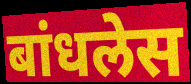
बांधलेस